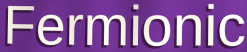
Fermionic